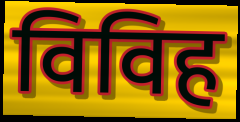
विविह